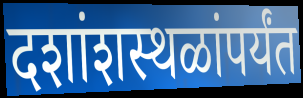
दशांशस्थळांपर्यंत